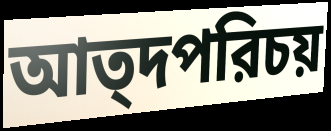
আত্দপরিচয়